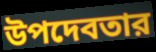
উপদেবতার